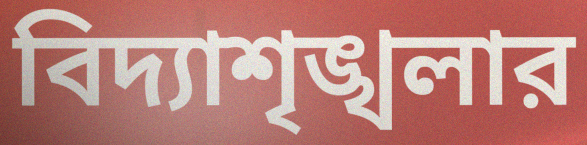
বিদ্যাশৃঙ্খলার